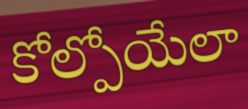
కోల్పోయేలా